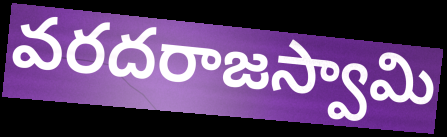
వరదరాజస్వామి